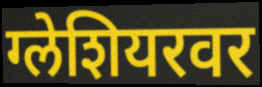
ग्लेशियरवर